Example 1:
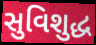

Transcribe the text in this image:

સુવિશુદ્ધ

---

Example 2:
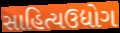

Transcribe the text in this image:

સાહિત્યઉદ્યોગ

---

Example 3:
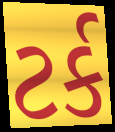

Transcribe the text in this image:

ટર્ક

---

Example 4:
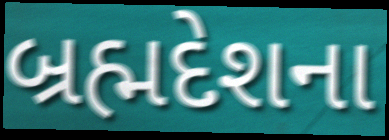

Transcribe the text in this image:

બ્રહ્મદેશના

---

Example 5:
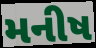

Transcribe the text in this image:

મનીષ